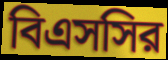
বিএসসির